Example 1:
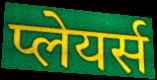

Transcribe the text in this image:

प्लेयर्स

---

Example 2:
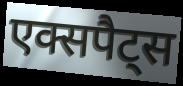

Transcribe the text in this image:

एक्सपैट्स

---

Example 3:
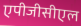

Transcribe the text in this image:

एपीजीसीएल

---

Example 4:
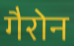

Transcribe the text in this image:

गैरोन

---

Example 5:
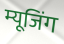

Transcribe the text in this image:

म्यूजिंग